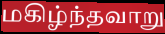
மகிழ்ந்தவாறு